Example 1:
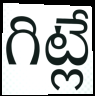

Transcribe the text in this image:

గిట్లే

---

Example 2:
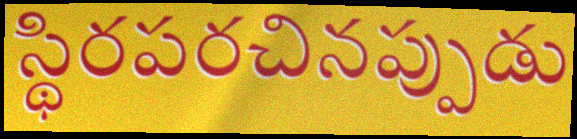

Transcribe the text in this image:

స్థిరపరచినప్పుడు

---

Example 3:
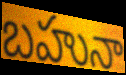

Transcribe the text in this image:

బహునా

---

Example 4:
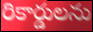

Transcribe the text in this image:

రికార్డులను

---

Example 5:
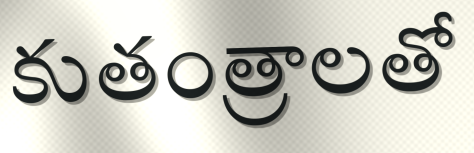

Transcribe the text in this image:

కుతంత్రాలతో